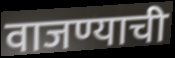
वाजण्याची